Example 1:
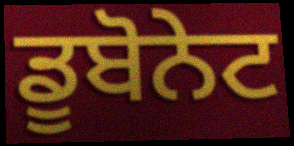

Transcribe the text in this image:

ਡੂਬੋਨੇਟ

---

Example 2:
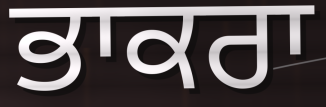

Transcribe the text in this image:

ਭਾਕਰਾ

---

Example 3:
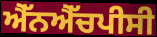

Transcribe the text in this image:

ਐੱਨਐੱਚਪੀਸੀ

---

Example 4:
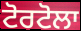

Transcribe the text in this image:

ਟੋਰਟੋਲਾ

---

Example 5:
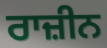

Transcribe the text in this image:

ਰਾਜ਼ੀਨ